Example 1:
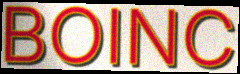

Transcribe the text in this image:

BOINC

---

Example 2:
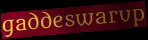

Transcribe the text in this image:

gaddeswarup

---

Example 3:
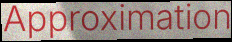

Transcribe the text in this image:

Approximation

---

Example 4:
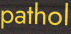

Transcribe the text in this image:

pathol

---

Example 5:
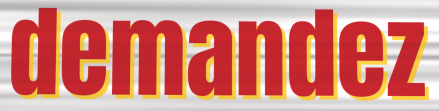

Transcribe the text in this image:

demandez